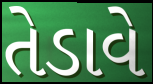
તેડાવે